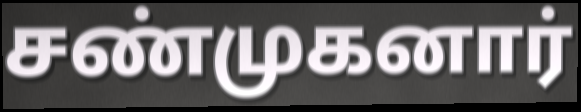
சண்முகனார்